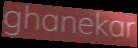
ghanekar